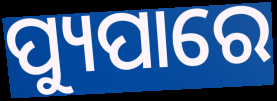
ପ୍ୟୁପାରେ